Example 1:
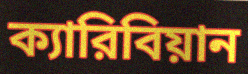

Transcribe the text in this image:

ক্যারিবিয়ান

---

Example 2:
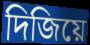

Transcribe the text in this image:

দিজিয়ে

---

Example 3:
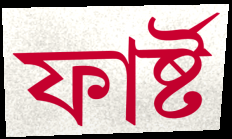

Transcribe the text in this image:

ফার্ষ্ট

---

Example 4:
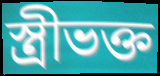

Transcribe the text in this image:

স্ত্রীভক্ত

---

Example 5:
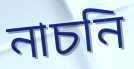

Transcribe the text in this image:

নাচনি